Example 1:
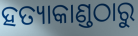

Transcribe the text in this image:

ହତ୍ୟାକାଣ୍ଡଠାରୁ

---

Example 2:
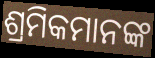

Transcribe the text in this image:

ଶ୍ରମିକମାନଙ୍କ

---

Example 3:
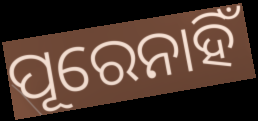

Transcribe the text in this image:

ପୂରେନାହିଁ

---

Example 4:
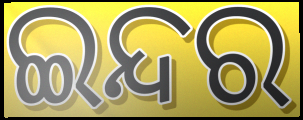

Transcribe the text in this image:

ଇନ୍ଦର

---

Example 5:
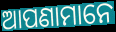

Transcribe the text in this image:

ଆପଣାମାନେ